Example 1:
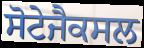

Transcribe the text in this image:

ਸੋਟੇਜੈਕਸਲ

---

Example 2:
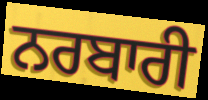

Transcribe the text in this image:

ਨਰਬਾਰੀ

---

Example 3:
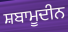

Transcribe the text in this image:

ਸ਼ਬਾਮੂਦੀਨ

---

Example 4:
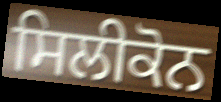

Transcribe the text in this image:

ਸਿਲੀਕੋਨ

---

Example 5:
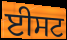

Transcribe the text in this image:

ਈਸਟ